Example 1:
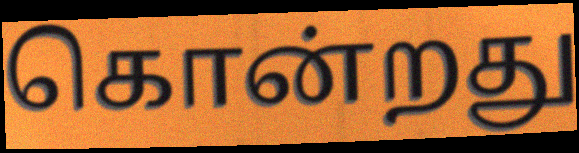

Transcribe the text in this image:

கொன்றது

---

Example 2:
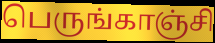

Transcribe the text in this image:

பெருங்காஞ்சி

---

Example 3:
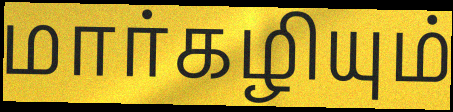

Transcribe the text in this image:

மார்கழியும்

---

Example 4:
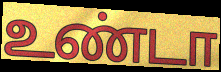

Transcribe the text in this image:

உண்டா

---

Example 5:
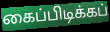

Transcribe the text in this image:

கைப்பிடிக்கப்